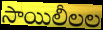
సాయిలీలల